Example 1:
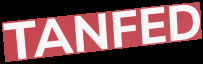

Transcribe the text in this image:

TANFED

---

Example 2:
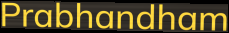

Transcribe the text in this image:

Prabhandham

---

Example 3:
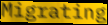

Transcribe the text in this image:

Migrating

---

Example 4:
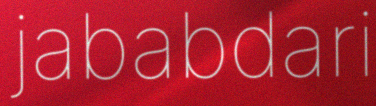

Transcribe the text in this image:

jababdari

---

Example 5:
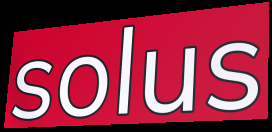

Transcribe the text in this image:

solus